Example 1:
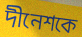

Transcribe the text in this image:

দীনেশকে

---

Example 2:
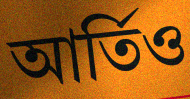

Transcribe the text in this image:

আর্তিও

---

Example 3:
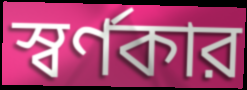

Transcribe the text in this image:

স্বর্ণকার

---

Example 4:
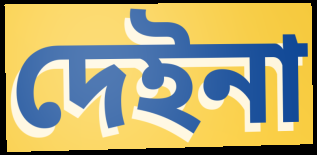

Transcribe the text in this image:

দেইনা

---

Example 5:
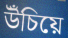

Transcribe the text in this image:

উঁচিয়ে